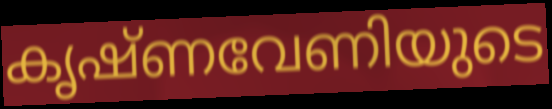
കൃഷ്ണവേണിയുടെ